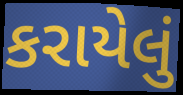
કરાયેલું